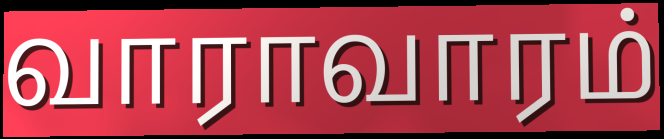
வாராவாரம்